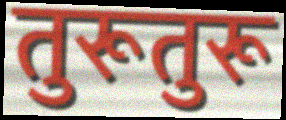
तुरूतुरू